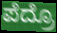
ಪೆದ್ರೊ